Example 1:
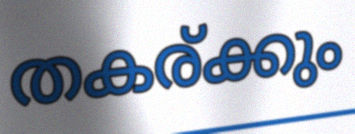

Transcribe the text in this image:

തകര്ക്കും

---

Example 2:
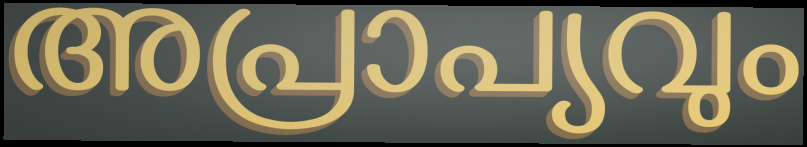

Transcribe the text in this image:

അപ്രാപ്യവും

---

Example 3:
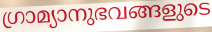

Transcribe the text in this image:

ഗ്രാമ്യാനുഭവങ്ങളുടെ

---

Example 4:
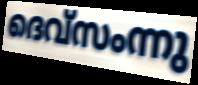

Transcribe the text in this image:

ദെവ്സംന്നു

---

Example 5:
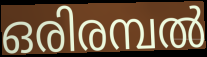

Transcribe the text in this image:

ഒരിരമ്പൽ